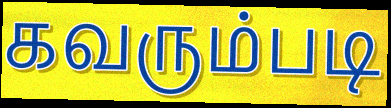
கவரும்படி